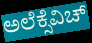
ಅಲೆಕ್ಸೆವಿಚ್